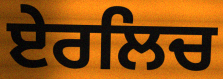
ਏਰਲਿਚ